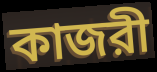
কাজরী